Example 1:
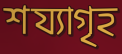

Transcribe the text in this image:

শয্যাগৃহ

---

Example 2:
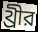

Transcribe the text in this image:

থ্রীর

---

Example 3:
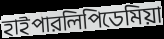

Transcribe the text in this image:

হাইপারলিপিডেমিয়া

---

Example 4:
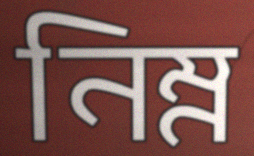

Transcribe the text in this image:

নিম্ন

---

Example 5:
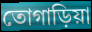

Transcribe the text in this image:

তোগাড়িয়া